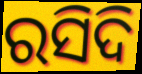
ରସିଦି